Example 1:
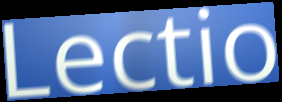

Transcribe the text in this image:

Lectio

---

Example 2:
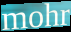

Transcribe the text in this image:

mohr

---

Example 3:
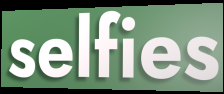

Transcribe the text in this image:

selfies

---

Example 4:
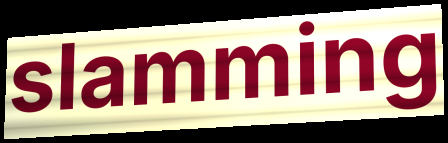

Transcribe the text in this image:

slamming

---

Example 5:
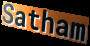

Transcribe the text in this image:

Satham